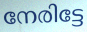
നേരിട്ടേ